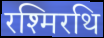
रश्मिरथि